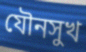
যৌনসুখ